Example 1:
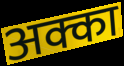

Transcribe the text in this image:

अक्का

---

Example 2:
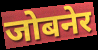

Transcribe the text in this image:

जोबनेर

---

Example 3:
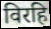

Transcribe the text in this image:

विरहि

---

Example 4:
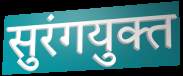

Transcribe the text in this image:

सुरंगयुक्त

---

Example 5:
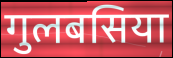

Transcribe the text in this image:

गुलबसिया